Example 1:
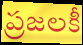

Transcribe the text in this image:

ప్రజలకీ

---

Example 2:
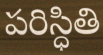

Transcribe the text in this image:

పరిస్ధితి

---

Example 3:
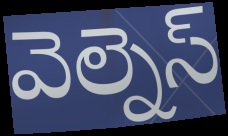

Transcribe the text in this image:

వెల్నెస్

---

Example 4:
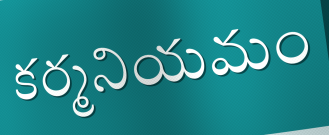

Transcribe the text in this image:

కర్మనియమం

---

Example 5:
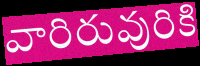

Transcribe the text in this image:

వారిరువురికి